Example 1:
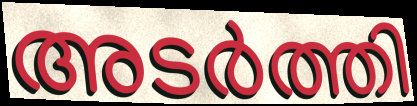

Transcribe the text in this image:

അടർത്തി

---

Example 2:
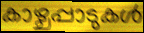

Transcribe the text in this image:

കാഴ്ചപ്പാടുകൾ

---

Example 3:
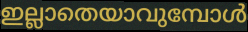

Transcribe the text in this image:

ഇല്ലാതെയാവുമ്പോൾ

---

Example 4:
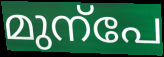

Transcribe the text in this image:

മുന്പേ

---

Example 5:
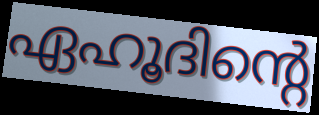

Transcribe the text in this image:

ഏഹൂദിന്റെ